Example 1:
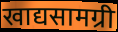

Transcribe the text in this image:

खाद्यसामग्री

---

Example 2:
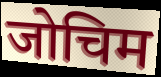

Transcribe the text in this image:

जोचिम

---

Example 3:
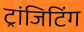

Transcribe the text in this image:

ट्रांजिटिंग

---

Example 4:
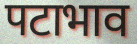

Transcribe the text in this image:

पटाभाव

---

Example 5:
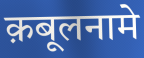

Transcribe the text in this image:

क़बूलनामे